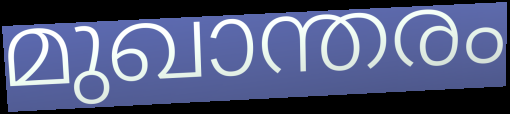
മുഖാന്തരം